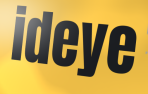
ideye